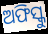
ଅଫିସ୍କୁ